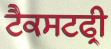
ਟੈਕਸਟਫ੍ਰੀ